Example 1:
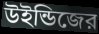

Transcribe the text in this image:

উইন্ডিজের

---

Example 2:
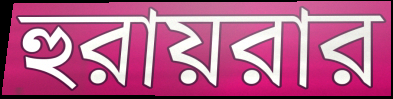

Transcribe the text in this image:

হুরায়রার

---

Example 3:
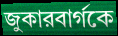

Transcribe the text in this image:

জুকারবার্গকে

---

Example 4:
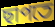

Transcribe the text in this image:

ছাপতে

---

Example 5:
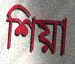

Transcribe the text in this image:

শিয়া